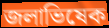
জলাভিষেক